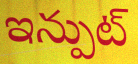
ఇన్పుట్